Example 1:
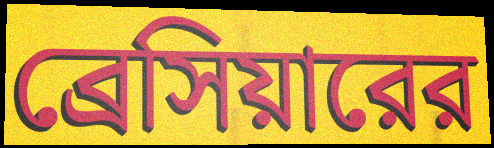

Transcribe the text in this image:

ব্রেসিয়ারের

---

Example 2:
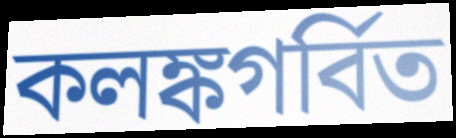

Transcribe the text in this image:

কলঙ্কগর্বিত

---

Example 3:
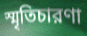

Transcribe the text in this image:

স্মৃতিচারণা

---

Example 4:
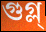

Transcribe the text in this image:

গুগ্ল্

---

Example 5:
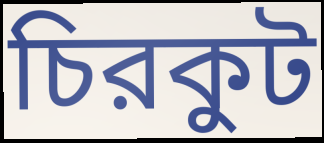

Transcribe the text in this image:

চিরকুট